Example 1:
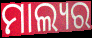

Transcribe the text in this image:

ମାଲ୍ୟର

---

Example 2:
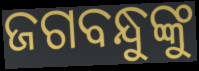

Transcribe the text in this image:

ଜଗବନ୍ଧୁଙ୍କୁ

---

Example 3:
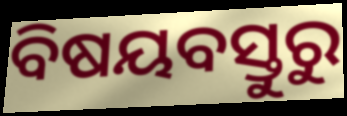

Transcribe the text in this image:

ବିଷୟବସ୍ତୁରୁ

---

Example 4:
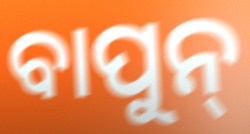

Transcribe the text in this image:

ବାପୁନ୍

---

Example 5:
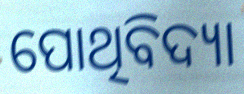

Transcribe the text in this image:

ପୋଥିବିଦ୍ୟା